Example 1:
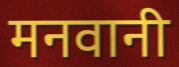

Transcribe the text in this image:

मनवानी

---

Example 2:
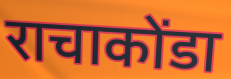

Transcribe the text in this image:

राचाकोंडा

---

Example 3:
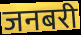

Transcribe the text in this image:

जनबरी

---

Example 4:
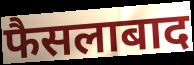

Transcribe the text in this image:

फैसलाबाद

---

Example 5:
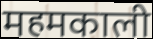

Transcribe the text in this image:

महमकाली